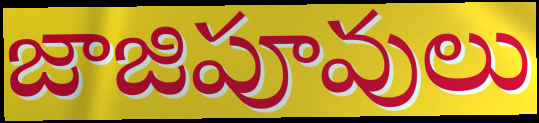
జాజిపూవులు